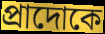
প্রাদোকে